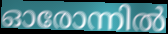
ഓരോന്നിൽ